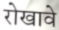
रोखावे